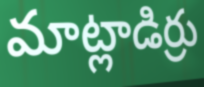
మాట్లాడిర్రు